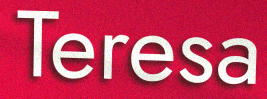
Teresa